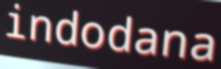
indodana